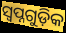
ସ୍ୱପ୍ନଗୁଡ଼ିକ